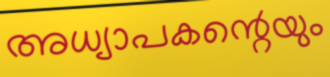
അധ്യാപകന്റെയും